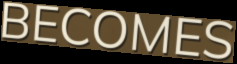
BECOMES